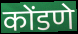
कोंडणे